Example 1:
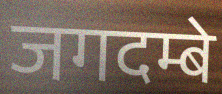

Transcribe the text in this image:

जगदम्बे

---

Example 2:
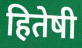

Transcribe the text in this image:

हितेषी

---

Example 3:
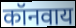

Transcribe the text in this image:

कॉनवाय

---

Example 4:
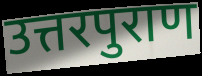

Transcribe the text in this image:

उत्तरपुराण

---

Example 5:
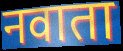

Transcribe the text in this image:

नवाता